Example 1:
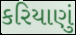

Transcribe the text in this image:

કરિયાણું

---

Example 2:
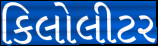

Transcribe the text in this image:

કિલોલીટર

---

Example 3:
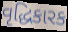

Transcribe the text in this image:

વૃદ્ધિકારક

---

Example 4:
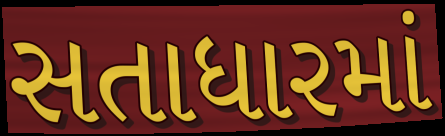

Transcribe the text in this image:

સતાધારમાં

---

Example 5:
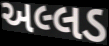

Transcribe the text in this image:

અલ્લડ